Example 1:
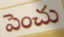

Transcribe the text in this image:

పెంచు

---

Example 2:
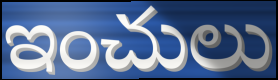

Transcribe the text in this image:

ఇంచులు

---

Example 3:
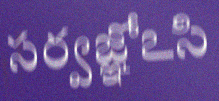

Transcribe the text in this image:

సర్వజ్ఞోఽసి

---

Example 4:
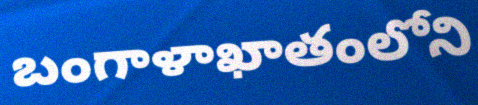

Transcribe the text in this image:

బంగాళాఖాతంలోని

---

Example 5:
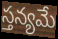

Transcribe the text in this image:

స్తన్యమే